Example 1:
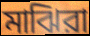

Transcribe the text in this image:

মাঝিরা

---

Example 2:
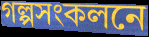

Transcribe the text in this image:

গল্পসংকলনে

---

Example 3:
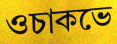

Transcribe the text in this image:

ওচাকভে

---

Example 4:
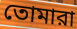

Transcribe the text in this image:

তোমারা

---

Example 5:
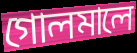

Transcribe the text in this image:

গোলমালে